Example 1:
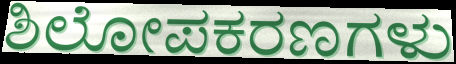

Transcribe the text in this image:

ಶಿಲೋಪಕರಣಗಳು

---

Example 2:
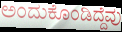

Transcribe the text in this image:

ಅಂದುಕೊಂಡಿದ್ದೆವು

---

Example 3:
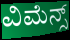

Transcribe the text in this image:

ವಿಮೆನ್ಸ್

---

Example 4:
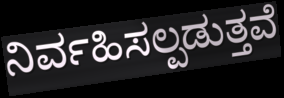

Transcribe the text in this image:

ನಿರ್ವಹಿಸಲ್ಪಡುತ್ತವೆ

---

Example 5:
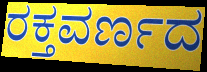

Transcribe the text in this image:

ರಕ್ತವರ್ಣದ